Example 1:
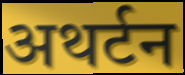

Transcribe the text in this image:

अथर्टन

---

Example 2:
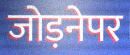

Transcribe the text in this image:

जोड़नेपर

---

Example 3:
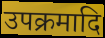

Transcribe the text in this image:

उपक्रमादि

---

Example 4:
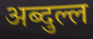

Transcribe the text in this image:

अब्दुल्ल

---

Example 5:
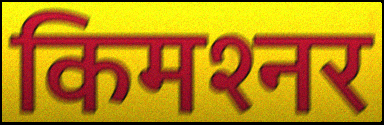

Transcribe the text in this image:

किमश्नर